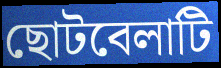
ছোটবেলাটি